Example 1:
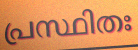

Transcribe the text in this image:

പ്രസ്ഥിതഃ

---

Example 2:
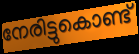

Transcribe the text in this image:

നേരിട്ടുകൊണ്ട്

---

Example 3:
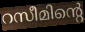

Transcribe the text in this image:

റസീമിന്റെ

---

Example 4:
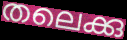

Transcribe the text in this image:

തലെക്കു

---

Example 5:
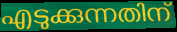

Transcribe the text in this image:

എടുക്കുന്നതിന്